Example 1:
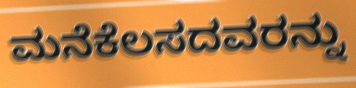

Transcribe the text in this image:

ಮನೆಕೆಲಸದವರನ್ನು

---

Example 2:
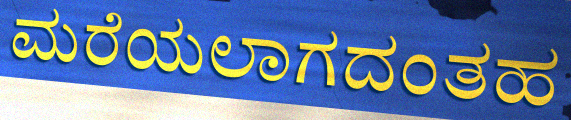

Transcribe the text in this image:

ಮರೆಯಲಾಗದಂತಹ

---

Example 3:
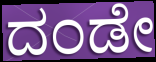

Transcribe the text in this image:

ದಂಡೇ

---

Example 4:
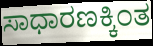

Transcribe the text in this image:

ಸಾಧಾರಣಕ್ಕಿಂತ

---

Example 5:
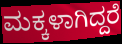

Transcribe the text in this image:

ಮಕ್ಕಳಾಗಿದ್ದರೆ